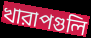
খারাপগুলি